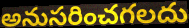
అనుసరించగలదు